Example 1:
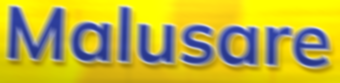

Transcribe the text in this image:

Malusare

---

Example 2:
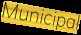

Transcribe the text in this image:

Municipal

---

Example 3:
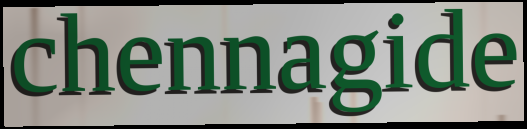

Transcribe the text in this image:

chennagide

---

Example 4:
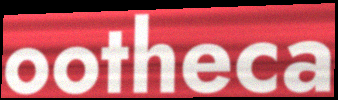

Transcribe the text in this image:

ootheca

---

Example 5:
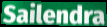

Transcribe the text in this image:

Sailendra